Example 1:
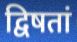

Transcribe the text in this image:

द्विषतां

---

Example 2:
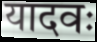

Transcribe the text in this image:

यादवः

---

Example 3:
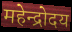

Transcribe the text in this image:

महेन्द्रोदय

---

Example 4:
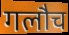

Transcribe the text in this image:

गलौच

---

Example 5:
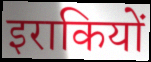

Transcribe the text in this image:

इराकियों